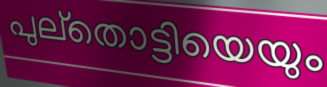
പുല്തൊട്ടിയെയും